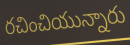
రచించియున్నారు